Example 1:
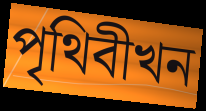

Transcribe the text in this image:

পৃথিবীখন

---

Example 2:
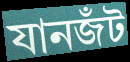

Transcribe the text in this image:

যানজঁট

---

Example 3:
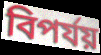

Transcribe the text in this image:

বিপৰ্যয়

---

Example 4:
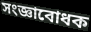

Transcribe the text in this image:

সংজ্ঞাবোধক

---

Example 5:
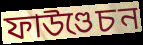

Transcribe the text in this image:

ফাউণ্ডেচন